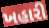
ખહારી